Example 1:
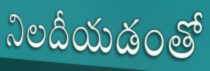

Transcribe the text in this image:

నిలదీయడంతో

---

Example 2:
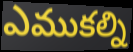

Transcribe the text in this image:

ఎముకల్ని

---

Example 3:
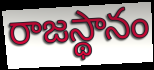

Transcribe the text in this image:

రాజస్థానం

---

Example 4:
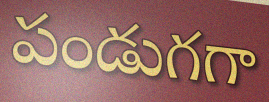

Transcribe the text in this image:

పండుగగా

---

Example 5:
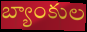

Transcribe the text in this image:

బ్యాంకుల